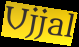
Ujjal